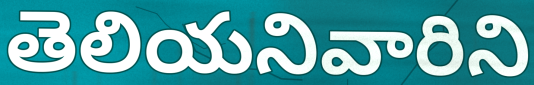
తెలియనివారిని